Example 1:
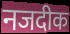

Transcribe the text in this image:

नजदीक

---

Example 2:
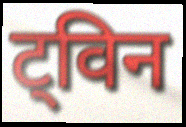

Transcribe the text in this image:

ट्विन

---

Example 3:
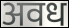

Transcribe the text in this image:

अवध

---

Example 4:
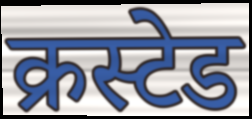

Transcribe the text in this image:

क्रस्टेड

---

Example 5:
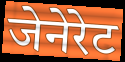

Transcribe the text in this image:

जेनेरेट